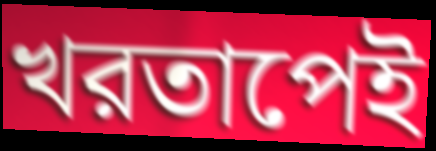
খরতাপেই